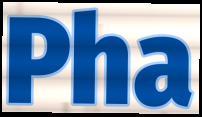
Pha